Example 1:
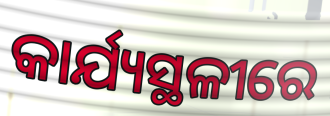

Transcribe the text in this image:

କାର୍ଯ୍ୟସ୍ଥଳୀରେ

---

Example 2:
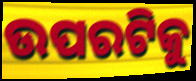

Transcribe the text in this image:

ଉପରଟିକୁ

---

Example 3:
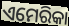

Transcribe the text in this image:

ଏମେରିକା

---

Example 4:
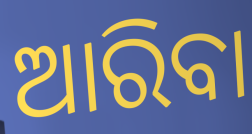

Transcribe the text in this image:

ଆରିବା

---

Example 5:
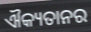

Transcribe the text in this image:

ଐକ୍ୟତାନର